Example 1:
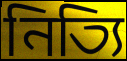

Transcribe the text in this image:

নিত্যি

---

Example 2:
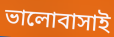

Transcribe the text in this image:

ভালোবাসাই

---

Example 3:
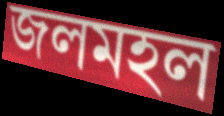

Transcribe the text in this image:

জলমহল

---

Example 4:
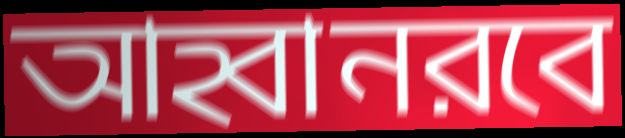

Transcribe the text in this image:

আহ্বানরবে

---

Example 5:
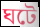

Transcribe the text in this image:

ঘটে